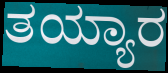
ತಯ್ಯಾರ